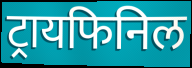
ट्रायफिनिल